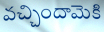
వచ్చిందామెకి